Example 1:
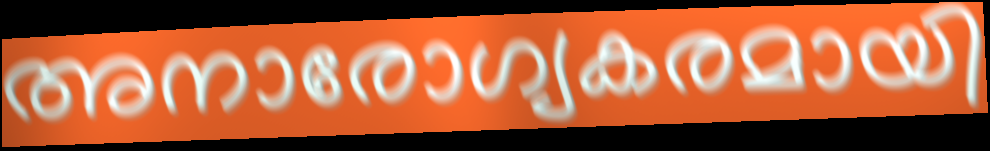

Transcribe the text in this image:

അനാരോഗ്യകരമായി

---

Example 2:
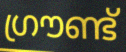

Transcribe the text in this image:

ഗ്രൗണ്ട്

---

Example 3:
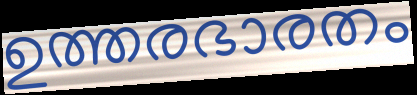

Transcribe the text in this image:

ഉത്തരഭാരതം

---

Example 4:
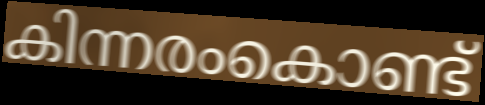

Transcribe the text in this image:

കിന്നരംകൊണ്ട്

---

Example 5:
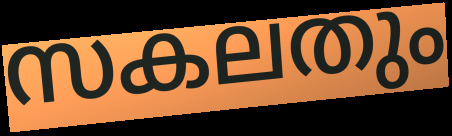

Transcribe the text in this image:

സകലതും